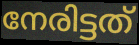
നേരിട്ടത്